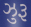
ઝુરૂ